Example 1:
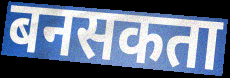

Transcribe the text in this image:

बनसकता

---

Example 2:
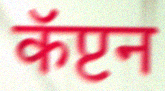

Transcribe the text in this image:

कॅप्टन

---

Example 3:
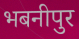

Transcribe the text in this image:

भबनीपुर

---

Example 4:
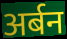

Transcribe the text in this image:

अर्बन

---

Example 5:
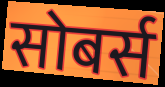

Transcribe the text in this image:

सोबर्स